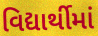
વિદ્યાર્થીમાં